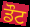
ਡੌਟ